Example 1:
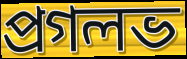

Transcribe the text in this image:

প্রগলভ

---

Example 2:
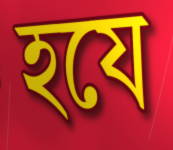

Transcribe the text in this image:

হযে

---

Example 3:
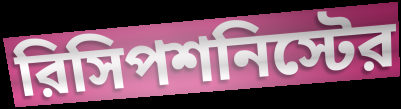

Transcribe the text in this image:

রিসিপশনিস্টের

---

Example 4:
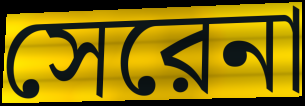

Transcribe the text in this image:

সেরেনা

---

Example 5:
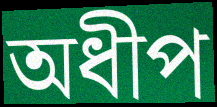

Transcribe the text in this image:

অধীপ